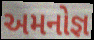
અમનોજ્ઞ